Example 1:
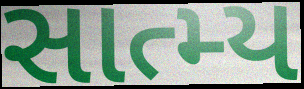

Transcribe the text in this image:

સાત્મ્ય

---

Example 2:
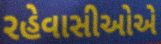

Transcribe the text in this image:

રહેવાસીઓએ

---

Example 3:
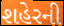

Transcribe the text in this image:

શહેરની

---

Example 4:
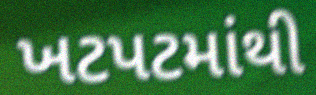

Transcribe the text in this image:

ખટપટમાંથી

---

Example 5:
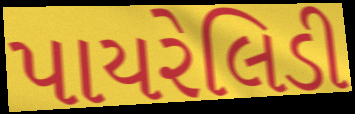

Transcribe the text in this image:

પાયરેલિડી